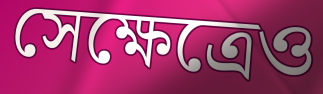
সেক্ষেত্রেও